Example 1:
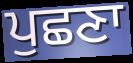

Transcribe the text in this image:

ਪੁਛਣਾ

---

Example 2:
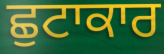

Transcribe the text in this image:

ਛੁਟਾਕਾਰ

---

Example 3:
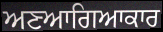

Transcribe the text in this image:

ਅਣਆਗਿਆਕਾਰ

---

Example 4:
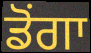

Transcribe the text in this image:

ਡੋਂਗਾ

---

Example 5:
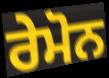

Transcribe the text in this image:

ਰੇਮੋਨ